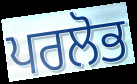
ਪਰਲੋਭ